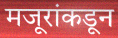
मजूरांकडून